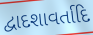
દ્વાદશાવર્તાદિ